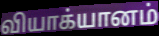
வியாக்யானம்